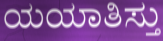
ಯಯಾತಿಸ್ತು